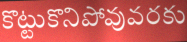
కొట్టుకొనిపోవువరకు